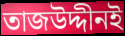
তাজউদ্দীনই